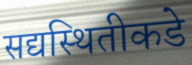
सद्यस्थितीकडे